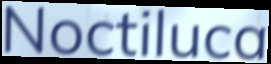
Noctiluca